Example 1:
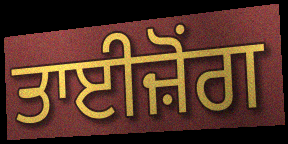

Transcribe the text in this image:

ਤਾਈਜ਼ੋਂਗ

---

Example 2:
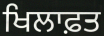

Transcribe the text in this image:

ਖਿਲਾਫ਼ਤ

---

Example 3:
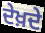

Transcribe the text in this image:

ਦੇਖ਼ਦੇ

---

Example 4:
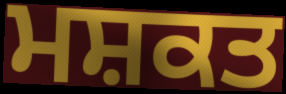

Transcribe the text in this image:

ਮਸ਼ਕਤ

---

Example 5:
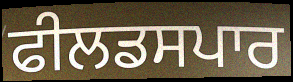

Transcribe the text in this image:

ਫੀਲਡਸਪਾਰ